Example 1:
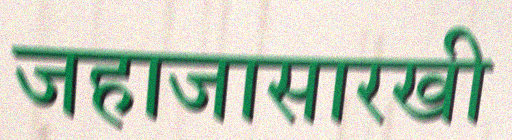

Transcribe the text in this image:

जहाजासारखी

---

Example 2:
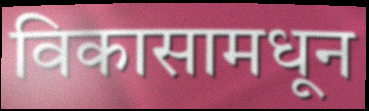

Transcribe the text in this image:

विकासामधून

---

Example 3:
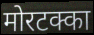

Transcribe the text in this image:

मोरटक्का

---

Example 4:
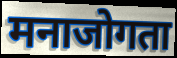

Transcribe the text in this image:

मनाजोगता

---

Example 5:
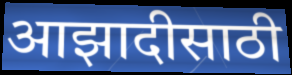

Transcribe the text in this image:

आझादीसाठी